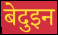
बेदुइन